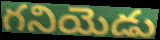
గనియెడు